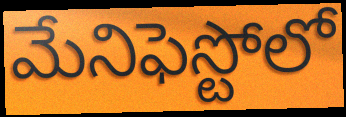
మేనిఫెస్టోలో